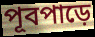
পূবপাড়ে